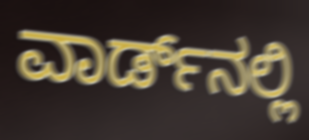
ವಾರ್ಡ್‌ನಲ್ಲಿ